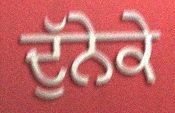
ਦੁੱਨੇਕੇ